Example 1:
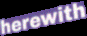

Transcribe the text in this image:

herewith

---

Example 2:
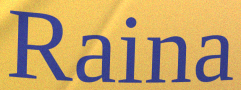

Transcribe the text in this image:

Raina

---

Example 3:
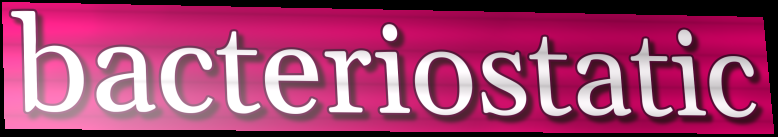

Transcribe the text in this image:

bacteriostatic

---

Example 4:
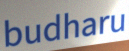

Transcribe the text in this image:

budharu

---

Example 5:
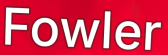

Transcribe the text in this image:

Fowler